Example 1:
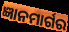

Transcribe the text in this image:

ଜ୍ଞାନମାର୍ଗର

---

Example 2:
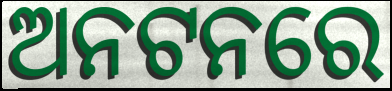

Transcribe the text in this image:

ଅନଟନରେ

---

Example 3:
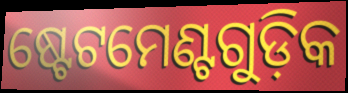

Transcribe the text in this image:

ଷ୍ଟେଟମେଣ୍ଟଗୁଡ଼ିକ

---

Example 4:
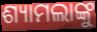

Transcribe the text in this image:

ଶ୍ୟାମଲାଙ୍କୁ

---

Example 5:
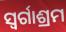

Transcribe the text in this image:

ସ୍ୱର୍ଗାଶ୍ରମ